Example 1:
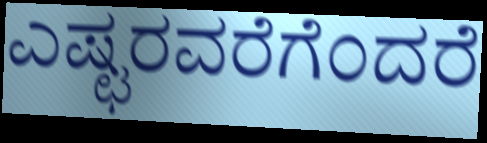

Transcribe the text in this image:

ಎಷ್ಟರವರೆಗೆಂದರೆ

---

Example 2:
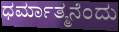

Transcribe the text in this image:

ಧರ್ಮಾತ್ಮನೆಂದು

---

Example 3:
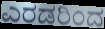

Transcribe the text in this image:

ಎರಡರಿಂದ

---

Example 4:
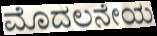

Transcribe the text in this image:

ಮೊದಲನೇಯ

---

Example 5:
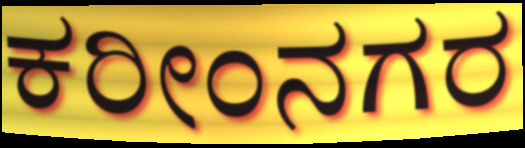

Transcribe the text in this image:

ಕರೀಂನಗರ